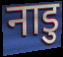
नाडु